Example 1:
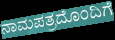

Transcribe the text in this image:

ನಾಮಪತ್ರದೊಂದಿಗೆ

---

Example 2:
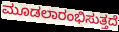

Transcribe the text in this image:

ಮೂಡಲಾರಂಭಿಸುತ್ತದೆ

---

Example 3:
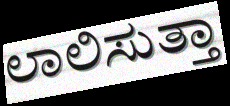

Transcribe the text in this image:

ಲಾಲಿಸುತ್ತಾ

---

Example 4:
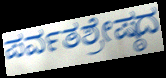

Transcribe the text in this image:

ಪರ್ವತಶ್ರೇಷ್ಠದ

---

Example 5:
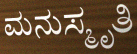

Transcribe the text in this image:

ಮನುಸ್ಮೃತಿ